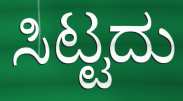
ಸಿಟ್ಟದು